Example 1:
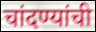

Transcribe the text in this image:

चांदण्यांची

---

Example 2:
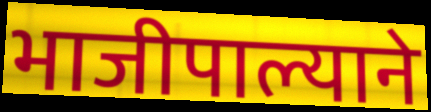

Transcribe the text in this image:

भाजीपाल्याने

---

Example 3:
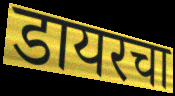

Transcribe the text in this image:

डायरचा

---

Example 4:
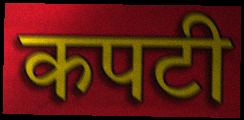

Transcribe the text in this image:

कपटी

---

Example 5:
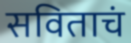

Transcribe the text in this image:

सविताचं